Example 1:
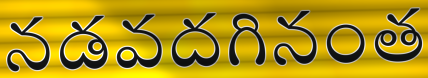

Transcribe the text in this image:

నడవదగినంత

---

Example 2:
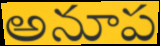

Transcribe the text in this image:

అనూప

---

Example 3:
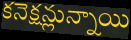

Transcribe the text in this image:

కనెక్షన్లున్నాయి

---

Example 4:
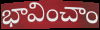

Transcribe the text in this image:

భావించాం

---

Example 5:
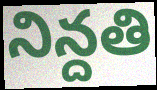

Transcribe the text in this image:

నిన్దతి